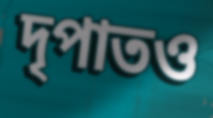
দৃপাতও